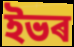
ইভৰ